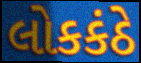
લોકકંઠે